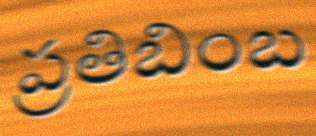
ప్రతిబింబ